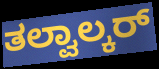
ತಲ್ವಾಲ್ಕರ್